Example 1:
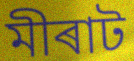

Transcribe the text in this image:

মীৰাট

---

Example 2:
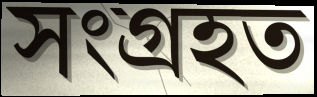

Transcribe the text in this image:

সংগ্ৰহত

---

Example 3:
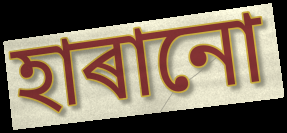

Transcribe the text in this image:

হাৰানো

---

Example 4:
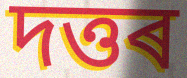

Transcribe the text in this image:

দত্তৰ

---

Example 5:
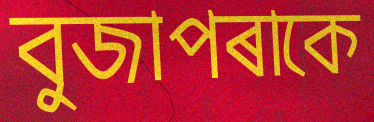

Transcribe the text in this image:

বুজাপৰাকে